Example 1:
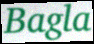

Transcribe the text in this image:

Bagla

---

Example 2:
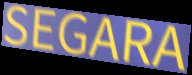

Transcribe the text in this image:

SEGARA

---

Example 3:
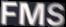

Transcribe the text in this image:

FMS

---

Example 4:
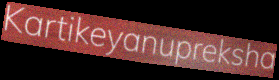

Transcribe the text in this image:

Kartikeyanupreksha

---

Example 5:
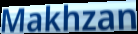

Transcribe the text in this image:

Makhzan